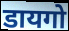
डायगो